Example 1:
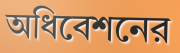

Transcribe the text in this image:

অধিবেশনের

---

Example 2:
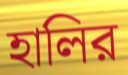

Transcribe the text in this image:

হালির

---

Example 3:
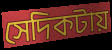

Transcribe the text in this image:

সেদিকটায়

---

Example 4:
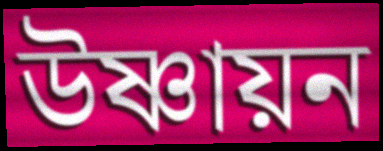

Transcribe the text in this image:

উষ্ণায়ন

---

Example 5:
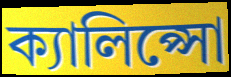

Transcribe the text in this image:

ক্যালিপ্সো